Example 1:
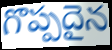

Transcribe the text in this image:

గొప్పదైన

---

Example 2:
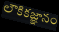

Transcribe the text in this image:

లౌకికజ్ఞానం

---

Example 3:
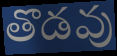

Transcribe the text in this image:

తొడవు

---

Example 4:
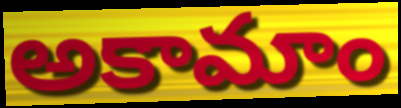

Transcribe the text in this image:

అకామాం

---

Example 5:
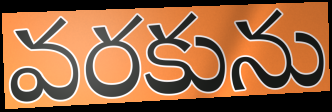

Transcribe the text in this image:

వరకును